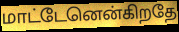
மாட்டேனென்கிறதே